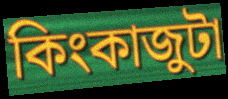
কিংকাজুটা